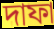
দাফা